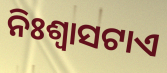
ନିଃଶ୍ଵାସଟାଏ